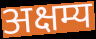
अक्षम्य